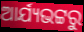
ଆର୍ଯ୍ୟଭଟ୍ଟରୁ